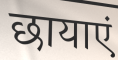
छायाएं